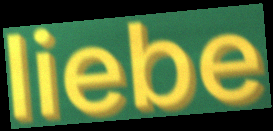
liebe